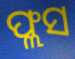
ଫ୍ଲସ